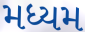
મધ્યમ